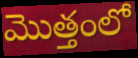
మొత్తంలో